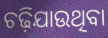
ଚଢ଼ିଯାଉଥିବା